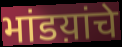
भांडय़ांचे